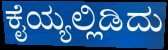
ಕೈಯ್ಯಲ್ಲಿಡಿದು